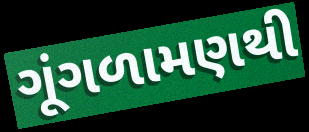
ગૂંગળામણથી